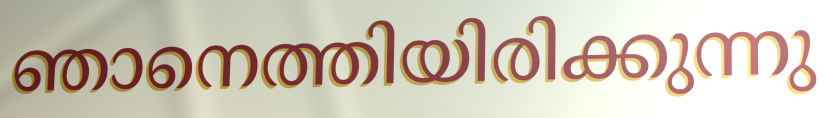
ഞാനെത്തിയിരിക്കുന്നു